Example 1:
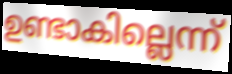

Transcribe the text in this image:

ഉണ്ടാകില്ലെന്ന്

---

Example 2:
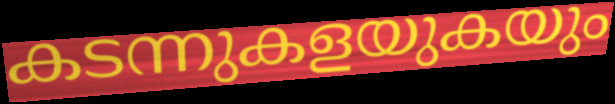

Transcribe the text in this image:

കടന്നുകളയുകയും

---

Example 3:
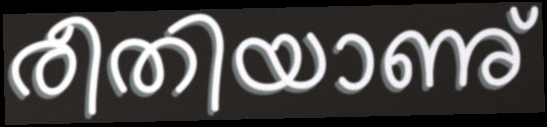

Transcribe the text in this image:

രീതിയാണു്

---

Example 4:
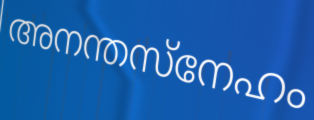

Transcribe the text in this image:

അനന്തസ്നേഹം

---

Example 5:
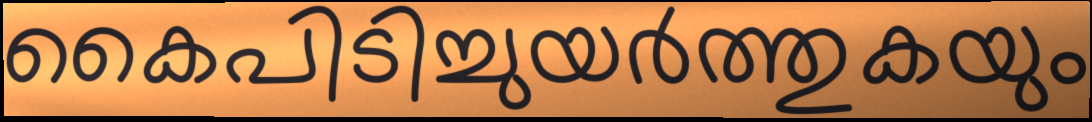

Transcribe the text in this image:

കൈപിടിച്ചുയർത്തുകയും